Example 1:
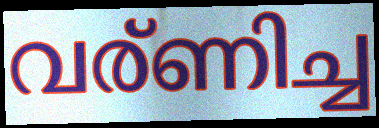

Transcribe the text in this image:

വര്ണിച്ച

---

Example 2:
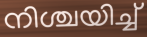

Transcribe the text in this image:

നിശ്ചയിച്ച്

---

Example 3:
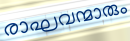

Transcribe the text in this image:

രാഘവന്മാരും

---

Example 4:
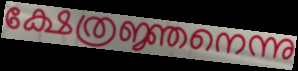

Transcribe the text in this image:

ക്ഷേത്രജ്ഞനെന്നു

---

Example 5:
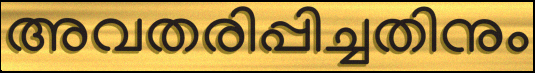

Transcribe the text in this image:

അവതരിപ്പിച്ചതിനും